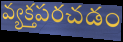
వ్యక్తపరచడం